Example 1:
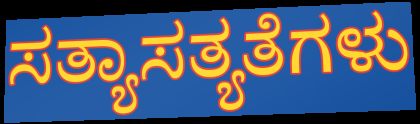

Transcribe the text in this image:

ಸತ್ಯಾಸತ್ಯತೆಗಳು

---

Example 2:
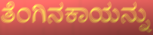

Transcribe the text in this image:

ತೆಂಗಿನಕಾಯನ್ನು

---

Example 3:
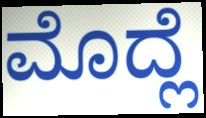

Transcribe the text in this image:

ಮೊದ್ಲೆ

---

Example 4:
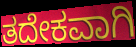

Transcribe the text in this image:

ತದೇಕವಾಗಿ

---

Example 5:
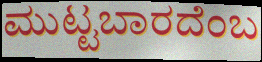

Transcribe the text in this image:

ಮುಟ್ಟಬಾರದೆಂಬ